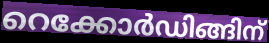
റെക്കോർഡിങ്ങിന്